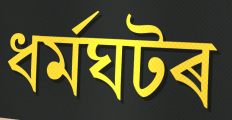
ধৰ্মঘটৰ